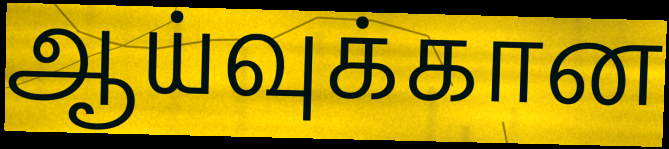
ஆய்வுக்கான